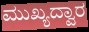
ಮುಖ್ಯದ್ವಾರ